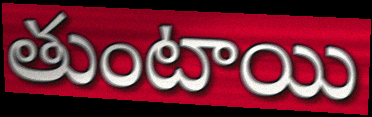
తుంటాయి